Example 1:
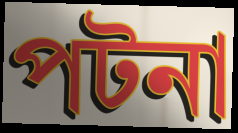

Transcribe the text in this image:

পটনা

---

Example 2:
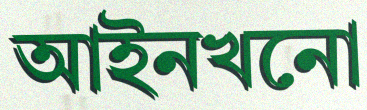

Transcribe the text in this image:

আইনখনো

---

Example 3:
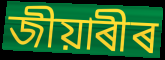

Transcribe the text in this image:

জীয়াৰীৰ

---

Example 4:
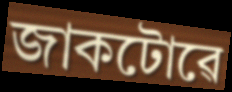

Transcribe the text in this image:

জাকটোৱে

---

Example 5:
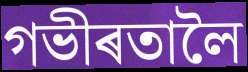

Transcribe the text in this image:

গভীৰতালৈ